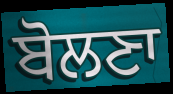
ਬੋਲਣਾ